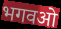
भगवओ